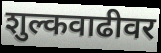
शुल्कवाढीवर